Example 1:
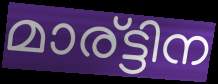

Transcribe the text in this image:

മാര്ട്ടിന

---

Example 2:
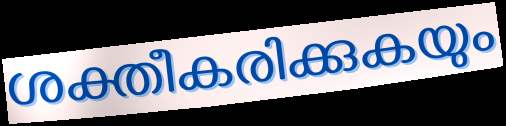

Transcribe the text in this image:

ശക്തീകരിക്കുകയും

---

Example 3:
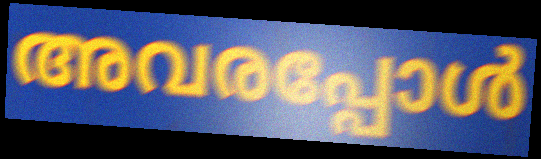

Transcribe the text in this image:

അവരപ്പോൾ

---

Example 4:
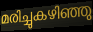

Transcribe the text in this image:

മരിച്ചുകഴിഞ്ഞു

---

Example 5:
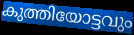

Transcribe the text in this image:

കുത്തിയോട്ടവും